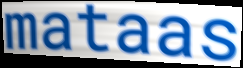
mataas